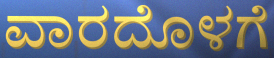
ವಾರದೊಳಗೆ